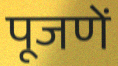
पूजणें